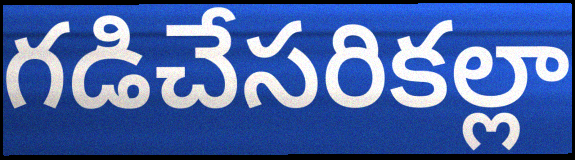
గడిచేసరికల్లా